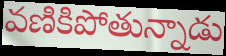
వణికిపోతున్నాడు